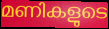
മണികളുടെ